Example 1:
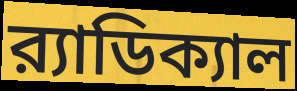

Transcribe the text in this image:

র‍্যাডিক্যাল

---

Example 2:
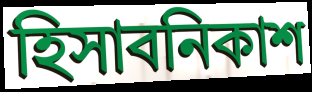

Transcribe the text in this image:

হিসাবনিকাশ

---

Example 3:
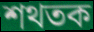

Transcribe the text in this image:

শথতক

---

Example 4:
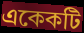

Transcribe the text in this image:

একেকটি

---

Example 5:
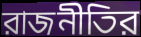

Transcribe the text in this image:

রাজনীতির